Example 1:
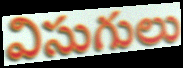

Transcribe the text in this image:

విసుగులు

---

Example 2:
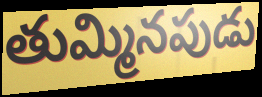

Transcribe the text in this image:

తుమ్మినపుడు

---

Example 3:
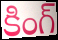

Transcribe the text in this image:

కింగ్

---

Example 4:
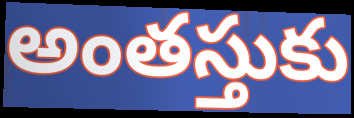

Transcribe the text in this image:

అంతస్తుకు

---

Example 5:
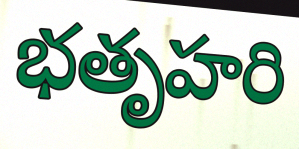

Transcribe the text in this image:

భతృహరి